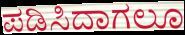
ಪಡಿಸಿದಾಗಲೂ